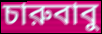
চারুবাবু